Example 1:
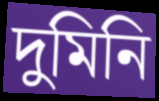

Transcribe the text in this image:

দুমিনি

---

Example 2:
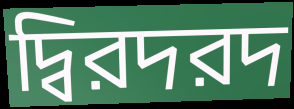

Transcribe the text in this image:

দ্বিরদরদ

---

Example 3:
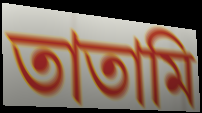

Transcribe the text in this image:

তাতামি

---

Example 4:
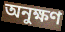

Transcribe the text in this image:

অনুক্ষণ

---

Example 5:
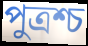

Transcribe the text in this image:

পুত্রশ্চ